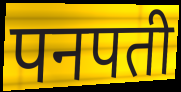
पनपती